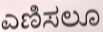
ಎಣಿಸಲೂ